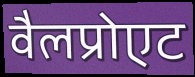
वैलप्रोएट